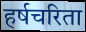
हर्षचरिता